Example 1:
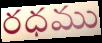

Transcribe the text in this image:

రధము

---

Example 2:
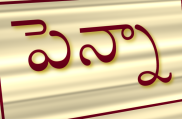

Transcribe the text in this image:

పెన్నా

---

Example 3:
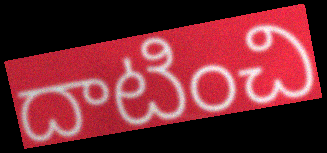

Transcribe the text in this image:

దాటించి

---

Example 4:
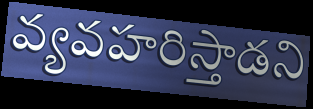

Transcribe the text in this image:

వ్యవహరిస్తాడని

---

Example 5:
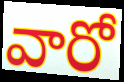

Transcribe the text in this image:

వారో